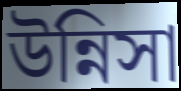
উন্নিসা